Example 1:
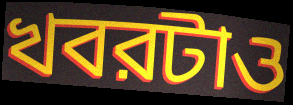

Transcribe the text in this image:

খবরটাও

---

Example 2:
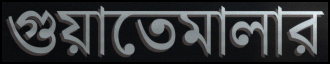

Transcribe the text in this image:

গুয়াতেমালার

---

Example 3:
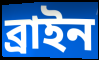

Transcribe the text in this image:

ব্রাইন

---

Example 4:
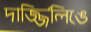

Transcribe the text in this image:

দার্জ্জিলিঙে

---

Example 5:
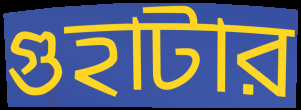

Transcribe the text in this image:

গুহাটার